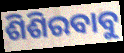
ଶିଶିରବାବୁ